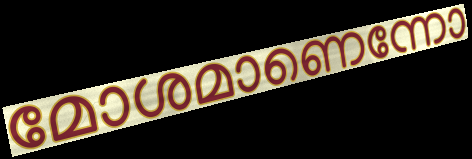
മോശമാണെന്നോ